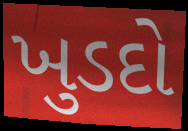
ખુડદો